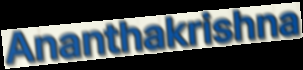
Ananthakrishna